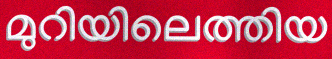
മുറിയിലെത്തിയ